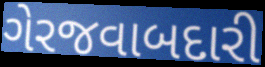
ગેરજવાબદારી